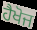
ਹੈਖੋਜ